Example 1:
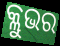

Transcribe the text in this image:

କ୍ଲୁଭର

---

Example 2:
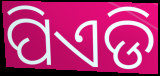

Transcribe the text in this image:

ପିଏଡି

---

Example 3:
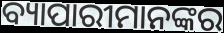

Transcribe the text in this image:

ବ୍ୟାପାରୀମାନଙ୍କର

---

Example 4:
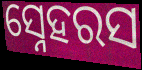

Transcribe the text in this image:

ସ୍ନେହରସ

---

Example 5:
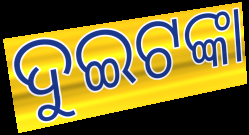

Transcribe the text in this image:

ଦୁଇଟଙ୍କା